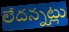
లేదన్నట్లు